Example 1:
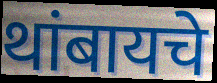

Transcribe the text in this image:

थांबायचे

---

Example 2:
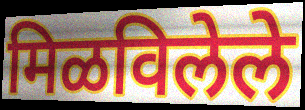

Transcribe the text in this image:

मिळविलेले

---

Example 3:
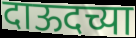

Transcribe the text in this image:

दाऊदच्या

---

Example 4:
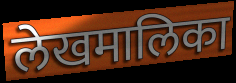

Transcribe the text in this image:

लेखमालिका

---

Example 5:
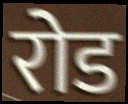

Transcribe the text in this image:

रोड